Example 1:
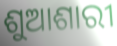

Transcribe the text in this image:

ଶୁଆଶାରୀ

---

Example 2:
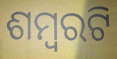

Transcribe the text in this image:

ଶମ୍ବରଟି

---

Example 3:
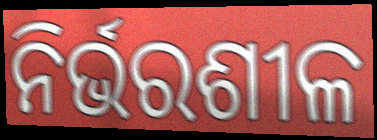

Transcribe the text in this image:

ନିର୍ଭରଶୀଳ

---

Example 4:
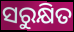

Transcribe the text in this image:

ସରୁକ୍ଷିତ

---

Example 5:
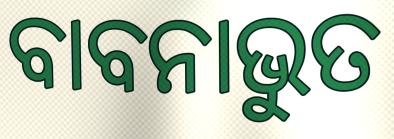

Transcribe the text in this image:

ବାବନାଭୁତ